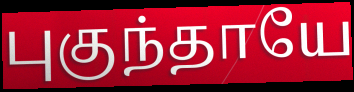
புகுந்தாயே